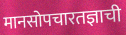
मानसोपचारतज्ञाची